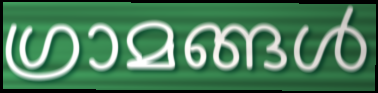
ഗ്രാമങ്ങൾ